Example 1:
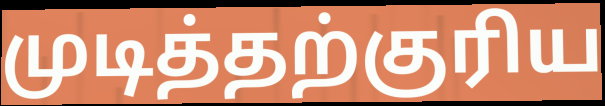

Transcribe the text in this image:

முடித்தற்குரிய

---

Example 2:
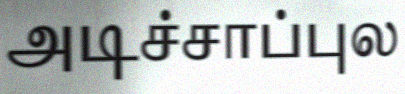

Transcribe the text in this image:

அடிச்சாப்புல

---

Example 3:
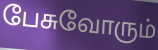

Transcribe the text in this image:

பேசுவோரும்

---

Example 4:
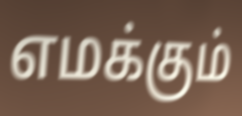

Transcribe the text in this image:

எமக்கும்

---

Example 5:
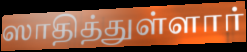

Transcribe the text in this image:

ஸாதித்துள்ளார்